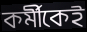
কর্মীকেই